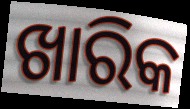
ଖାରିକ